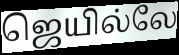
ஜெயில்லே